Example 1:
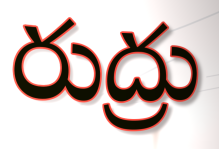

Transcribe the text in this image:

రుద్రు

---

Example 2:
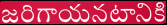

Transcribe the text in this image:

జరిగాయనటానికి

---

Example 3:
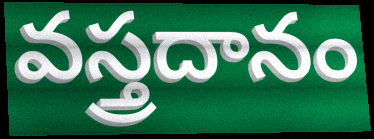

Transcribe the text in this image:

వస్త్రదానం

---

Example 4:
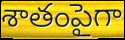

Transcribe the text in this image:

శాతంపైగా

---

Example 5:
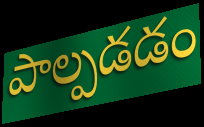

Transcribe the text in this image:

పాల్పడడం